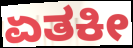
ಏತಕೀ